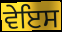
ਵੇਇਸ